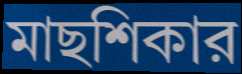
মাছশিকার